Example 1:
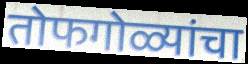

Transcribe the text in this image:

तोफगोळ्यांचा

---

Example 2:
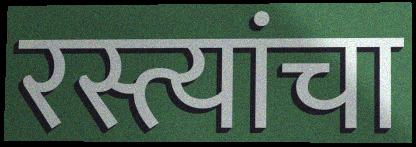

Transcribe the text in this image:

रस्त्यांचा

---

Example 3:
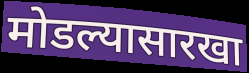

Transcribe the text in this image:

मोडल्यासारखा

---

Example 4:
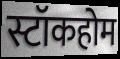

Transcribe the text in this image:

स्टॉकहोम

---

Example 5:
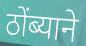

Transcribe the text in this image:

ठोंब्याने